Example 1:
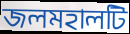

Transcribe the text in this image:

জলমহালটি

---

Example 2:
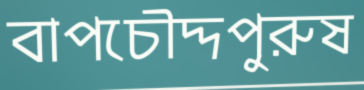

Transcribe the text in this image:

বাপচৌদ্দপুরুষ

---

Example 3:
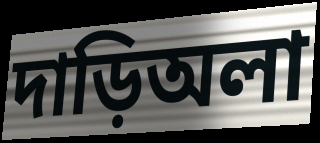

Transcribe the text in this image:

দাড়িঅলা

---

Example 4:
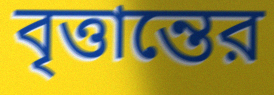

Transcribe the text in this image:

বৃত্তান্তের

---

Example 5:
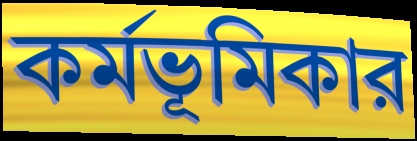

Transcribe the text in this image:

কর্মভূমিকার